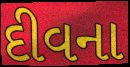
દીવના